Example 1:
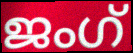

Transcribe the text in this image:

ജംഗ്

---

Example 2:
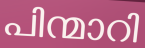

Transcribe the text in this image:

പിന്മാറി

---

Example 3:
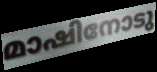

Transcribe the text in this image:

മാഷിനോടു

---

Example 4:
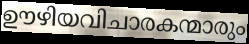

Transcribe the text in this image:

ഊഴിയവിചാരകന്മാരും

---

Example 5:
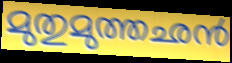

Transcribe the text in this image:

മുതുമുത്തഛൻ